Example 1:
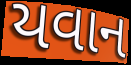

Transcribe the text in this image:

યવાન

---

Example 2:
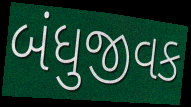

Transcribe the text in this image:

બંધુજીવક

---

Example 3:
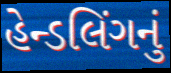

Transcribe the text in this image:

હેન્ડલિંગનું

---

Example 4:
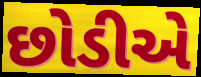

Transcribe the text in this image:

છોડીએ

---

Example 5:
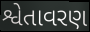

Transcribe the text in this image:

શ્વેતાવરણ